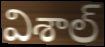
విశాల్